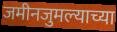
जमीनजुमल्याच्या